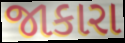
જાકારા